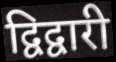
द्विद्वारी